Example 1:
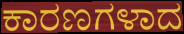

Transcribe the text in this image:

ಕಾರಣಗಳಾದ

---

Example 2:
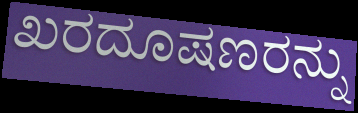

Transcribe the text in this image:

ಖರದೂಷಣರನ್ನು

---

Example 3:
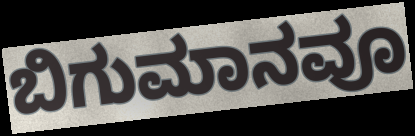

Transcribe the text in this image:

ಬಿಗುಮಾನವೂ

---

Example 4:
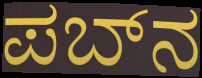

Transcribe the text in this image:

ಪಬ್‌ನ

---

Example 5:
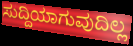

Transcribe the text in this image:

ಸುದ್ದಿಯಾಗುವುದಿಲ್ಲ